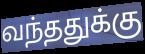
வந்ததுக்கு